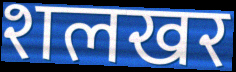
शलखर